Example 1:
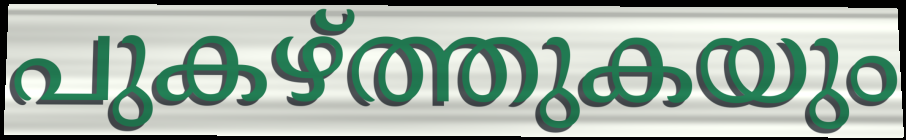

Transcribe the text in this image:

പുകഴ്ത്തുകയും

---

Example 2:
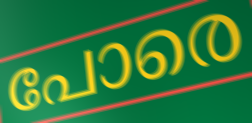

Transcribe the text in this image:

പോരെ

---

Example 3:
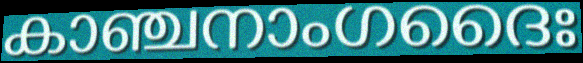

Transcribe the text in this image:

കാഞ്ചനാംഗദൈഃ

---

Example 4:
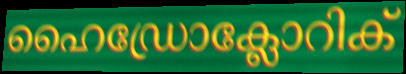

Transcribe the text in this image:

ഹൈഡ്രോക്ലോറിക്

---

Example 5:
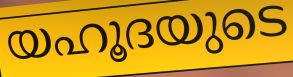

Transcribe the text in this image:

യഹൂദയുടെ